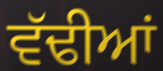
ਵੱਢੀਆਂ